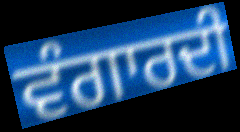
ਵੰਗਾਰਦੀ